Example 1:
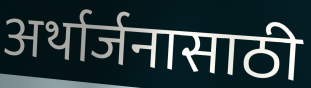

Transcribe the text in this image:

अर्थार्जनासाठी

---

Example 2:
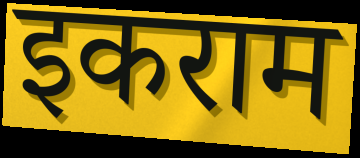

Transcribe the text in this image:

इकराम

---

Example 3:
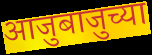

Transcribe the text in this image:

आजुबाजुच्या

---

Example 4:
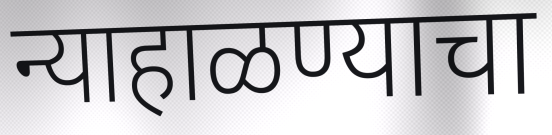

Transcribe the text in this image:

न्याहाळण्याचा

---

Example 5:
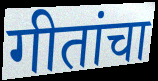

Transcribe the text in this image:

गीतांचा